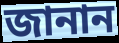
জানান